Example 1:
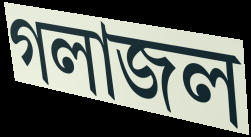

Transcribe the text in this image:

গলাজল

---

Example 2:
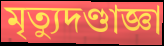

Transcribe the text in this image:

মৃত্যুদণ্ডাজ্ঞা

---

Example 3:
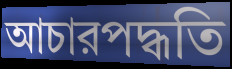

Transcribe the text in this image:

আচারপদ্ধতি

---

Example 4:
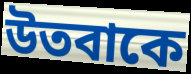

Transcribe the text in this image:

উতবাকে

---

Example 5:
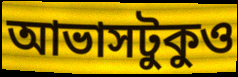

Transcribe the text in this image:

আভাসটুকুও